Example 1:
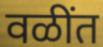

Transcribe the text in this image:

वळींत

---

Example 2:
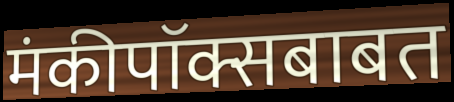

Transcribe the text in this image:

मंकीपॉक्सबाबत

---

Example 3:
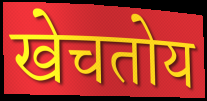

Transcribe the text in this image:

खेचतोय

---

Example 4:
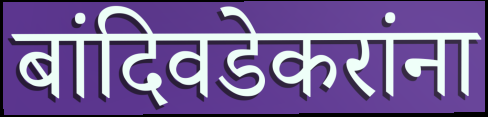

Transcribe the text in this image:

बांदिवडेकरांना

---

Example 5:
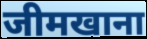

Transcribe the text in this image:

जीमखाना